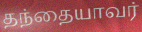
தந்தையாவர்